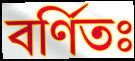
বর্ণিতঃ